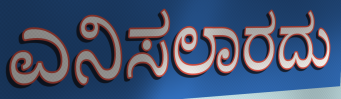
ಎನಿಸಲಾರದು